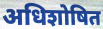
अधिशोषित